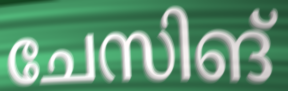
ചേസിങ്